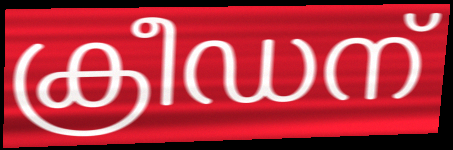
ക്രീഡന്